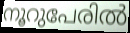
നൂറുപേരിൽ